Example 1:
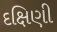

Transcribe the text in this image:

દક્ષિણી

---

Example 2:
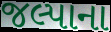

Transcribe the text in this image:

જલ્પાના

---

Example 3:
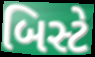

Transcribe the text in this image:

બિસ્ટે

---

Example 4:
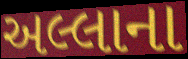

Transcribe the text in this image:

અલ્લાના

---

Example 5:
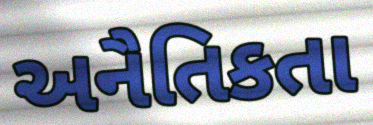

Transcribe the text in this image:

અનૈતિકતા